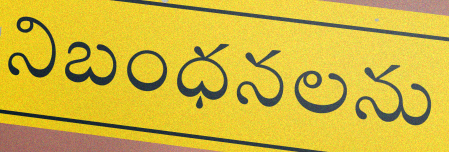
నిబంధనలను